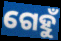
ଗେହୁଁ